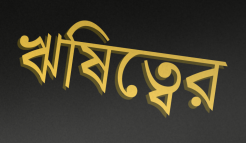
ঋষিত্বের